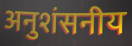
अनुशंसनीय